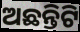
ଅଛନ୍ତିଟି